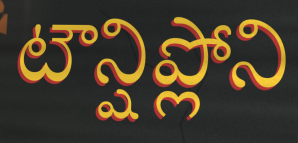
టౌన్షిప్లోని